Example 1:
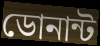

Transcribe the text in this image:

ডোনান্ট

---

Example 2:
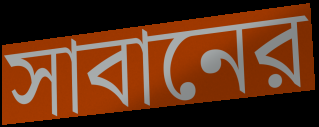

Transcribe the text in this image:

সাবানের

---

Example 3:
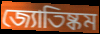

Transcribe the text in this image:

জ্যোতিষ্কম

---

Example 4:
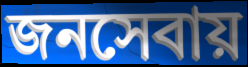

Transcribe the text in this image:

জনসেবায়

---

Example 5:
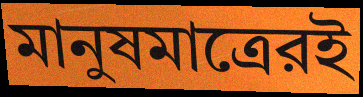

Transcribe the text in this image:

মানুষমাত্রেরই